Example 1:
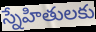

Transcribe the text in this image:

స్నేహితులకు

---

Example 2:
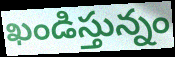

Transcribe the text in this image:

ఖండిస్తున్నం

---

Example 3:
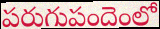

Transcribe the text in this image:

పరుగుపందెంలో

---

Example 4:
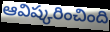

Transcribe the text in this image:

ఆవిష్కరించింది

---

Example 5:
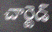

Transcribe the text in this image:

చార్టెడ్